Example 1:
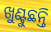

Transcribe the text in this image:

ଖୁଣ୍ଟୁଛନ୍ତି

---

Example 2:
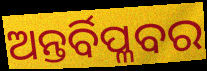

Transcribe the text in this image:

ଅନ୍ତର୍ବିପ୍ଳବର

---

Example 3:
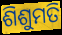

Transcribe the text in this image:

ଶିଶୁମତି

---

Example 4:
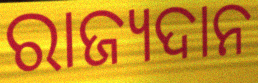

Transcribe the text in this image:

ରାଜ୍ୟଦାନ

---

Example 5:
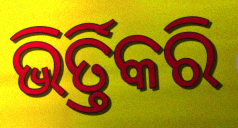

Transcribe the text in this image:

ଭିର୍ତ୍ତିକରି